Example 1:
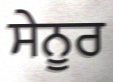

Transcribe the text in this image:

ਸੇਨੂਰ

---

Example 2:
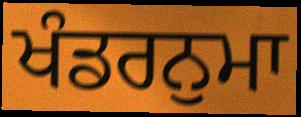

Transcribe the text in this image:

ਖੰਡਰਨੁਮਾ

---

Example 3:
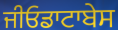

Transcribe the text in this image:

ਜੀਓਡਾਟਾਬੇਸ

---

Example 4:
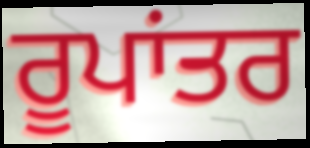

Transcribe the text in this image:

ਰੂਪਾਂਤਰ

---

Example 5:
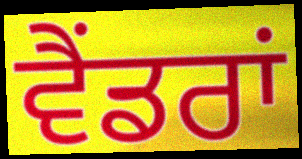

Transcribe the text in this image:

ਵੈਂਡਰਾਂ